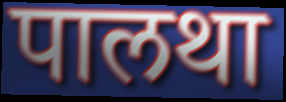
पालथा